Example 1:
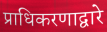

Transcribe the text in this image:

प्राधिकरणाद्वारे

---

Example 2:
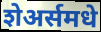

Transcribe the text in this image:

शेअर्समधे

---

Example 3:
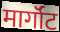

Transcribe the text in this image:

मार्गॉट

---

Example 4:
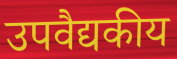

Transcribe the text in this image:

उपवैद्यकीय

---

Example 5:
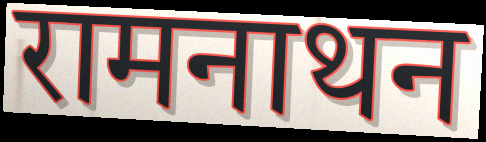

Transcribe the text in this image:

रामनाथन